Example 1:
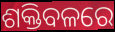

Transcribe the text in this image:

ଶକ୍ତିବଳରେ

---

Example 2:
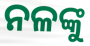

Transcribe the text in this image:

ନଳଙ୍କୁ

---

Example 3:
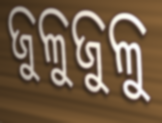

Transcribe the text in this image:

ଜୁଳୁଜୁଳୁ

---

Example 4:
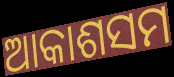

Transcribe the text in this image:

ଆକାଶସମ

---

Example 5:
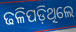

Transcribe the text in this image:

ଢଳିପଡ଼ିଥିଲେ